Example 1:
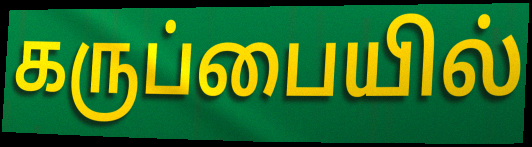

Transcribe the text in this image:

கருப்பையில்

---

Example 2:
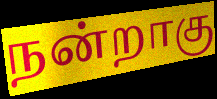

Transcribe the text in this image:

நன்றாகு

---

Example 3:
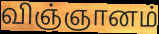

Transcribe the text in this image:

விஞ்ஞானம்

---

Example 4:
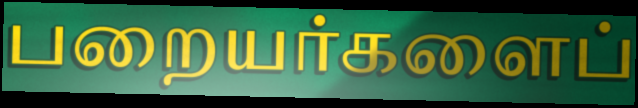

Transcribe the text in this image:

பறையர்களைப்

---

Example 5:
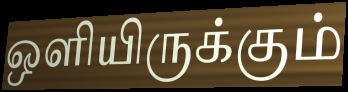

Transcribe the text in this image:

ஒளியிருக்கும்